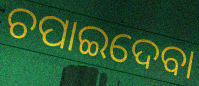
ଚପାଇଦେବା